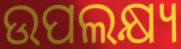
ଉପଲକ୍ଷ୍ୟ